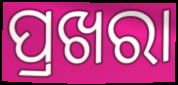
ପ୍ରଖରା